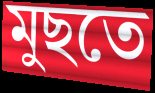
মুছতে